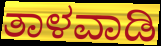
ತಾಳವಾಡಿ